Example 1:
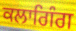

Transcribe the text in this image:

ਕਲਾਗਿੰਗ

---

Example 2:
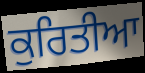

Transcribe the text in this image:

ਕੁਰਿਤੀਆ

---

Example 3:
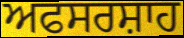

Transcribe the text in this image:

ਅਫਸਰਸ਼ਾਹ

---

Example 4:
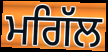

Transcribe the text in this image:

ਮਗਿੱਲ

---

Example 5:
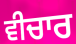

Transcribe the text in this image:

ਵੀਚਾਰ